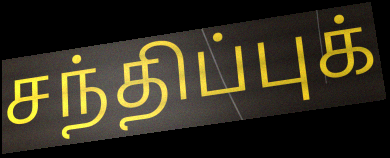
சந்திப்புக்